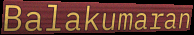
Balakumaran